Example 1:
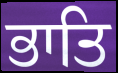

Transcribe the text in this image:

ਭਾਤਿ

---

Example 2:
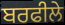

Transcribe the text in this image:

ਬਰਫੀਲੇ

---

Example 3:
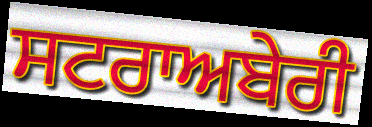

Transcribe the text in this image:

ਸਟਰਾਅਬੇਰੀ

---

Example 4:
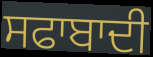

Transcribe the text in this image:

ਸਫਾਬਾਦੀ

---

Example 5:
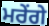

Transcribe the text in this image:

ਮਰੇਂਗੇ